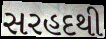
સરહદથી